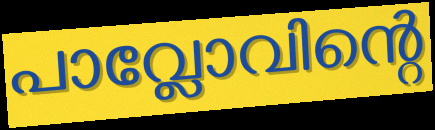
പാവ്ലോവിന്റെ